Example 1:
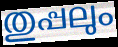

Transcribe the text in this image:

തുപ്പലും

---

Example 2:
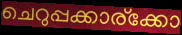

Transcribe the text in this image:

ചെറുപ്പക്കാര്ക്കോ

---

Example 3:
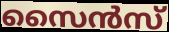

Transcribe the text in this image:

സൈൻസ്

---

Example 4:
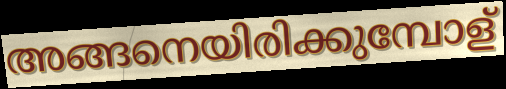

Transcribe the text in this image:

അങ്ങനെയിരിക്കുമ്പോള്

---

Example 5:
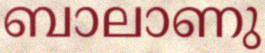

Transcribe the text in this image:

ബാലാണു